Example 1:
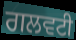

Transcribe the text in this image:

ਗਲਵਟੀ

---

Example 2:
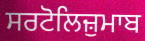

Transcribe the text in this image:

ਸਰਟੋਲਿਜ਼ੁਮਾਬ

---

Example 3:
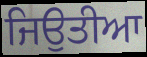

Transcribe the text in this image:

ਜਿਉਤੀਆ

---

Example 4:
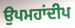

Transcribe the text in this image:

ਉਪਮਹਾਂਦੀਪ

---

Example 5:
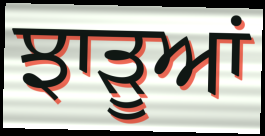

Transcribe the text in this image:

ਝਾੜੂਆਂ